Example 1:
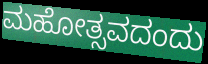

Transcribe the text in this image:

ಮಹೋತ್ಸವದಂದು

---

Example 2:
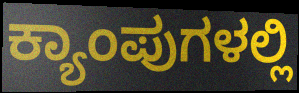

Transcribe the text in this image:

ಕ್ಯಾಂಪುಗಳಲ್ಲಿ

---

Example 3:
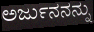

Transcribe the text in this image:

ಅರ್ಜುನನನ್ನು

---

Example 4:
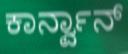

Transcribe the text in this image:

ಕಾರ್ನ್ವಾನ್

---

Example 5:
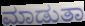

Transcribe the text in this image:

ಮಾಡುತಾ